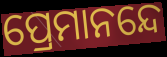
ପ୍ରେମାନନ୍ଦେ